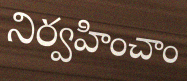
నిర్వహించాం